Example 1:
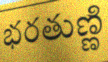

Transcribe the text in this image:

భరతుణ్ణి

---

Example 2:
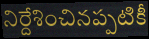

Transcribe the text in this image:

నిర్దేశించినప్పటికీ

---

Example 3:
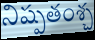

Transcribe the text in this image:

నిష్పతంశ్చ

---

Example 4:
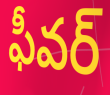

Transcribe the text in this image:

ఫీవర్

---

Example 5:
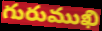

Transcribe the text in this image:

గురుముఖి